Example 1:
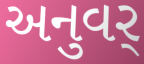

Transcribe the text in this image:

અનુવર્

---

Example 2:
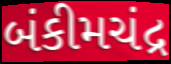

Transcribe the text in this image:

બંકીમચંદ્ર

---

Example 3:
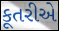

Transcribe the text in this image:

કૂતરીએ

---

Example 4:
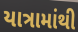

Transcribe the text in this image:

યાત્રામાંથી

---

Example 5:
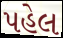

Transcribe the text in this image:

પહેલ